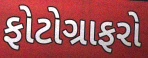
ફોટોગ્રાફરો